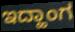
ಇದ್ಹಾಂಗ